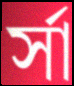
র্সা